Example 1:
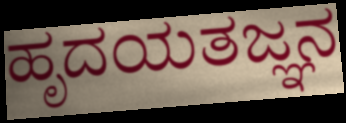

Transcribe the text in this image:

ಹೃದಯತಜ್ಞನ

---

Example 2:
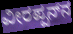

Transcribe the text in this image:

ವೀರಪ್ಪನ್‍ನ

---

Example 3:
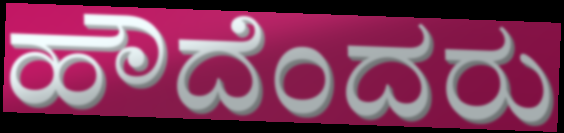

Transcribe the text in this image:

ಹೌದೆಂದರು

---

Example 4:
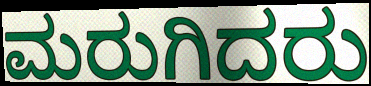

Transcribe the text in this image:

ಮರುಗಿದರು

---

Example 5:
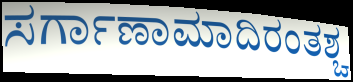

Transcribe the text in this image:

ಸರ್ಗಾಣಾಮಾದಿರಂತಶ್ಚ